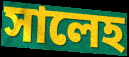
সালেহ